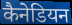
कैनेडियन